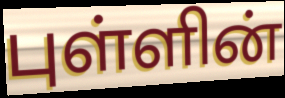
புள்ளின்